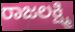
ರಾಜಲಕ್ಷ್ಮಿ